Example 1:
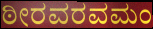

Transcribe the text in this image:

ಠೀರವರವಮಂ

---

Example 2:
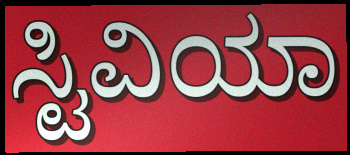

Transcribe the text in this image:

ಸ್ಟಿವಿಯಾ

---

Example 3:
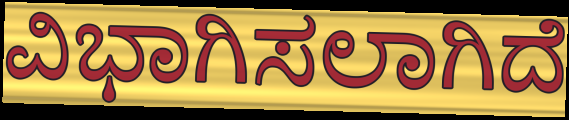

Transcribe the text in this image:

ವಿಭಾಗಿಸಲಾಗಿದೆ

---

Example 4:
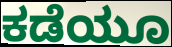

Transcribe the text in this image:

ಕಡೆಯೂ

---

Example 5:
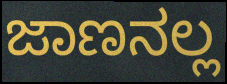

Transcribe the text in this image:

ಜಾಣನಲ್ಲ